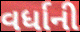
વર્ધાની